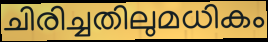
ചിരിച്ചതിലുമധികം